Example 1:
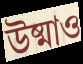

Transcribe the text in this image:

উষ্মাও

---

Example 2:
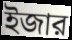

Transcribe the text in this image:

ইজার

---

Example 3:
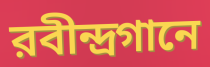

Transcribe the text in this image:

রবীন্দ্রগানে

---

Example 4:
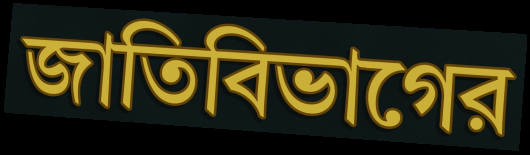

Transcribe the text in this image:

জাতিবিভাগের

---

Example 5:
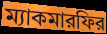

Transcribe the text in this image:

ম্যাকমারফির